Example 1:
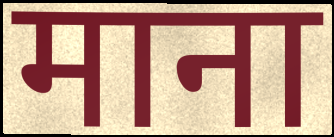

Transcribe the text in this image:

माना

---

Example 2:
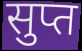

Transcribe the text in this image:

सुप्त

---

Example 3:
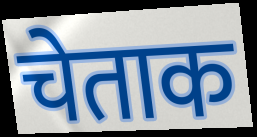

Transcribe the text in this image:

चेताक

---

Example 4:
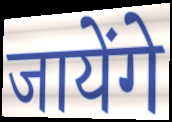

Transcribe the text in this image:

जायेंगे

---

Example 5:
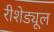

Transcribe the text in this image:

रीशेड्यूल